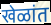
खेळांत